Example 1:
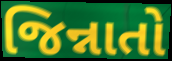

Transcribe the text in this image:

જિન્નાતો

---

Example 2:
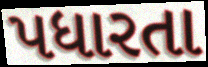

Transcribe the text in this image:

પધારતા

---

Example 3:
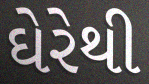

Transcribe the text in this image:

ઘેરેથી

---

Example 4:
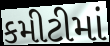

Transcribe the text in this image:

કમીટીમાં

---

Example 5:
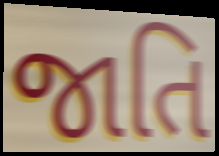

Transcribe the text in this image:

જાતિ